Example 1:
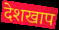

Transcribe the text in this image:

देशखाप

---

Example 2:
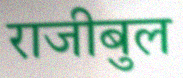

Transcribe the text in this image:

राजीबुल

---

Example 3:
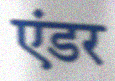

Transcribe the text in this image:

एंडर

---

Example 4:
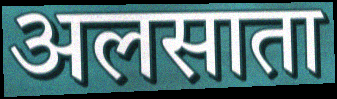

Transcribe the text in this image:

अलसाता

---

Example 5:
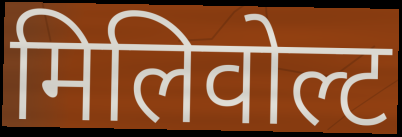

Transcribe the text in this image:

मिलिवोल्ट